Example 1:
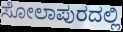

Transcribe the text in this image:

ಸೋಲಾಪುರದಲ್ಲಿ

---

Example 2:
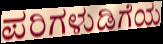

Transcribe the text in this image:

ಪರಿಗಳುಡಿಗೆಯ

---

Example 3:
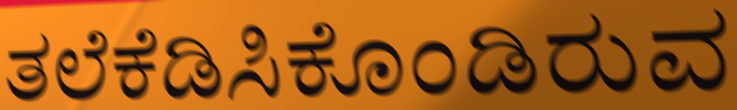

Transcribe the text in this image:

ತಲೆಕೆಡಿಸಿಕೊಂಡಿರುವ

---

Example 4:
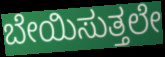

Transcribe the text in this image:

ಬೇಯಿಸುತ್ತಲೇ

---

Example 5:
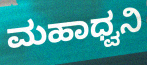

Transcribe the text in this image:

ಮಹಾಧ್ವನಿ